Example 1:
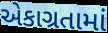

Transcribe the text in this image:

એકાગ્રતામાં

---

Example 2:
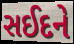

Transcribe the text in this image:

સઈદને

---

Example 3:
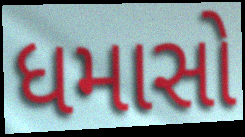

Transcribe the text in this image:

ધમાસો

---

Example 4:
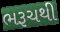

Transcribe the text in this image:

ભરૂચથી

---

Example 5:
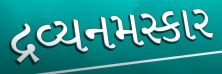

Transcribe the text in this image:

દ્રવ્યનમસ્કાર